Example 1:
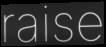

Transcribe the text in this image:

raise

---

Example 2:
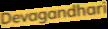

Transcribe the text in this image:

Devagandhari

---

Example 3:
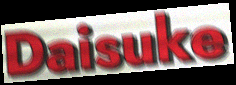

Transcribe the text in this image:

Daisuke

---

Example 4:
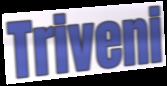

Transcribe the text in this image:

Triveni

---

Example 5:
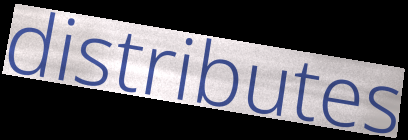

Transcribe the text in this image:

distributes